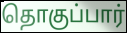
தொகுப்பார்